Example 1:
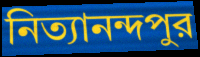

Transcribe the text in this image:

নিত্যানন্দপুর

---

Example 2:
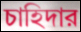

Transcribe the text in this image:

চাহিদার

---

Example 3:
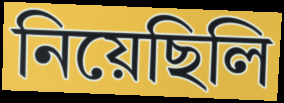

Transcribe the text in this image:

নিয়েছিলি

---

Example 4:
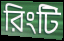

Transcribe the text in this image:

রিংটি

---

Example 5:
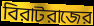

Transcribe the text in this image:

বিরাটরাজের